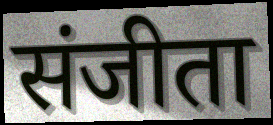
संजीता